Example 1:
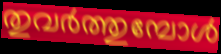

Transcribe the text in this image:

തുവർത്തുമ്പോൾ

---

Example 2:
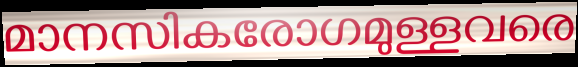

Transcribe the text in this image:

മാനസികരോഗമുള്ളവരെ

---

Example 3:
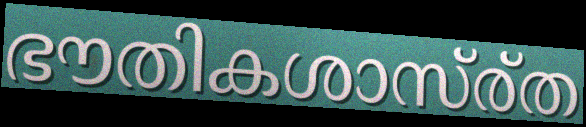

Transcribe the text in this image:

ഭൗതികശാസ്ര്ത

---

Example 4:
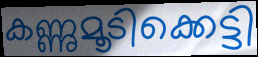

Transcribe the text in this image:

കണ്ണുമൂടിക്കെട്ടി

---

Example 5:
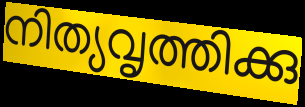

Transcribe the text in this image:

നിത്യവൃത്തിക്കു